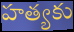
హత్యకు